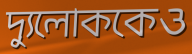
দ্যুলোককেও